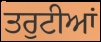
ਤਰੁਟੀਆਂ